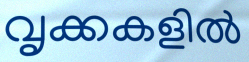
വൃക്കകളിൽ